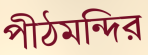
পীঠমন্দির